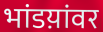
भांडय़ांवर